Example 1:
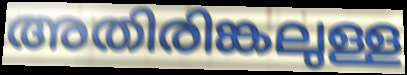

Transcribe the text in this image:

അതിരിങ്കലുള്ള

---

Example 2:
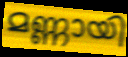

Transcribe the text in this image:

മണ്ണായി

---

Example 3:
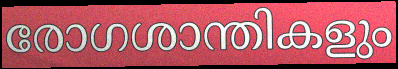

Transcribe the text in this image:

രോഗശാന്തികളും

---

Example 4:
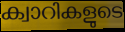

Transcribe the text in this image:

ക്വാറികളുടെ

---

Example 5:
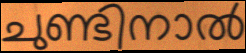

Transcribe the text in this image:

ചുണ്ടിനാൽ